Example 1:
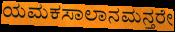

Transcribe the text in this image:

ಯಮಕಸಾಲಾನಮನ್ತರೇ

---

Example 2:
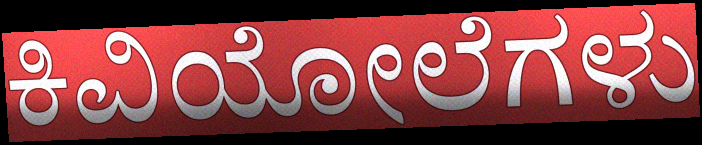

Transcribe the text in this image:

ಕಿವಿಯೋಲೆಗಳು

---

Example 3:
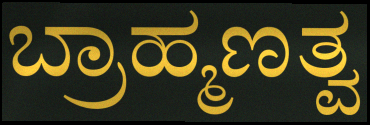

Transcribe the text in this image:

ಬ್ರಾಹ್ಮಣತ್ವ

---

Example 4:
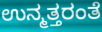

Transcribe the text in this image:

ಉನ್ಮತ್ತರಂತೆ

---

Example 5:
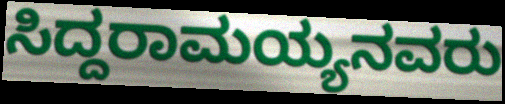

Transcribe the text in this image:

ಸಿದ್ದರಾಮಯ್ಯನವರು